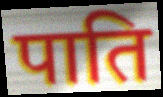
पाति